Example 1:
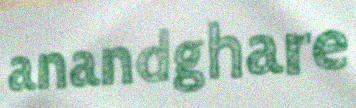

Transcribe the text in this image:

anandghare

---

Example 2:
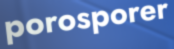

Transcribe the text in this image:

porosporer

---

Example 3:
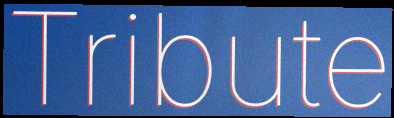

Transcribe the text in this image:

Tribute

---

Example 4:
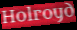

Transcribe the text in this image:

Holroyd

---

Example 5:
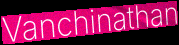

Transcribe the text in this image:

Vanchinathan